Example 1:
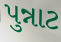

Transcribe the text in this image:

પુન્નાટ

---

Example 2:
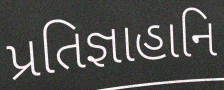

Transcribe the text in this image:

પ્રતિજ્ઞાહાનિ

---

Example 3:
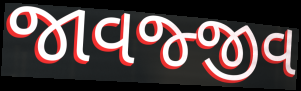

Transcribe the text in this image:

જાવજ્જીવ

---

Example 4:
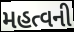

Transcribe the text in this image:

મહત્વની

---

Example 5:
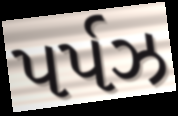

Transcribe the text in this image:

પર્પઝ